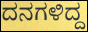
ದನಗಳಿದ್ದ